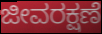
ಜೀವರಕ್ಷಣೆ